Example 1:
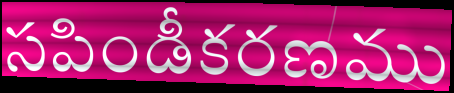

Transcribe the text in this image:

సపిండీకరణము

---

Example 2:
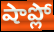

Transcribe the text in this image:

షాప్లో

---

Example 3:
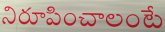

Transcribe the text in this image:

నిరూపించాలంటే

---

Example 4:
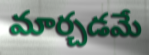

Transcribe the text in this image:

మార్చడమే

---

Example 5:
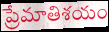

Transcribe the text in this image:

ప్రేమాతిశయం